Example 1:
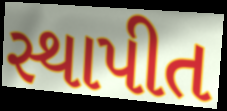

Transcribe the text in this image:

સ્થાપીત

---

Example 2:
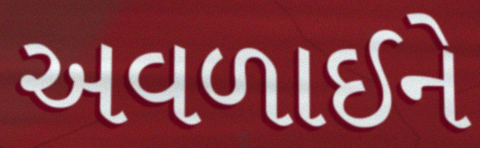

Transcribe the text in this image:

અવળાઈને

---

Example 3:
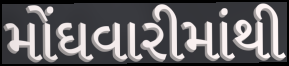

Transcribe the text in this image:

મોંઘવારીમાંથી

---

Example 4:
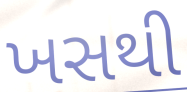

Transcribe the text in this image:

ખસથી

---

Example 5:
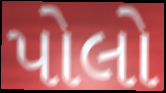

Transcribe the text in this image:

પોલો